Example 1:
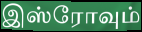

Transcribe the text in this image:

இஸ்ரோவும்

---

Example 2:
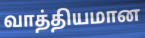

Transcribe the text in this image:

வாத்தியமான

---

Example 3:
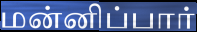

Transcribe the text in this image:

மன்னிப்பார்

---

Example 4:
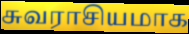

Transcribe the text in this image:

சுவராசியமாக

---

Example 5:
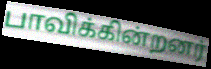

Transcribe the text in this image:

பாவிக்கின்றனர்